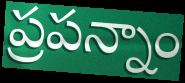
ప్రపన్నాం